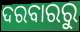
ଦରବାରରୁ